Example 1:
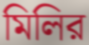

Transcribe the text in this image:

মিলির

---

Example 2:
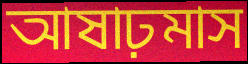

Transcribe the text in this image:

আষাঢ়মাস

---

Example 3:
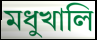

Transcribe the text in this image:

মধুখালি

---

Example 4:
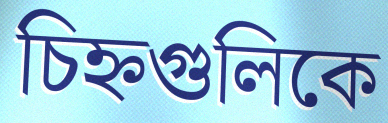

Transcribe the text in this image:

চিহ্নগুলিকে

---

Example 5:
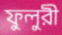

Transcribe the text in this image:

ফুলুরী